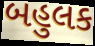
બહુલક